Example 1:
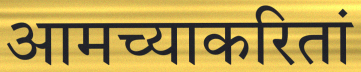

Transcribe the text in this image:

आमच्याकरितां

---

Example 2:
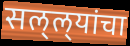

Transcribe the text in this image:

सल्ल्यांचा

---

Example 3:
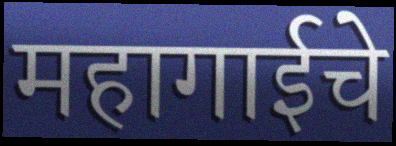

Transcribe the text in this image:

महागाईचे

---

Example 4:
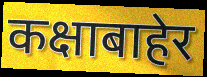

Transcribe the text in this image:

कक्षाबाहेर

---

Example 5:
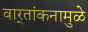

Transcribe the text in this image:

वार्तांकनामुळे